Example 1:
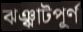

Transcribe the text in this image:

ঝঞ্ঝাটপূর্ণ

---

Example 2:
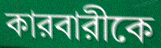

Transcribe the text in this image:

কারবারীকে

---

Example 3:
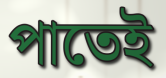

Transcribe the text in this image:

পাতেই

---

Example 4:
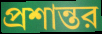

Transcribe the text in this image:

প্রশান্তর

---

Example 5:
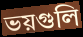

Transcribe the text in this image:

ভয়গুলি